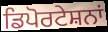
ਡਿਪੋਰਟੇਸ਼ਨਾਂ